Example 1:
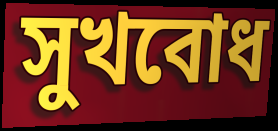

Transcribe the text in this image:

সুখবোধ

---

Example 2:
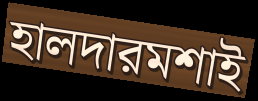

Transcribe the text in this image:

হালদারমশাই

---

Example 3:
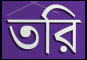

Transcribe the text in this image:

তরি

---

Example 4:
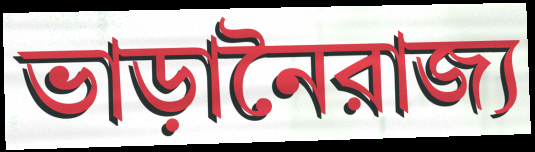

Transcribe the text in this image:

ভাড়ানৈরাজ্য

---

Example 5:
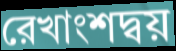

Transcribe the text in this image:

রেখাংশদ্বয়